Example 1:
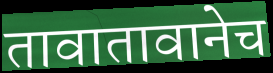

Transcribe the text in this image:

तावातावानेच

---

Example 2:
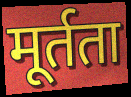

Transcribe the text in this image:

मूर्तता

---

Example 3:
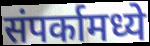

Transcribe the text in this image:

संपर्कामध्ये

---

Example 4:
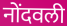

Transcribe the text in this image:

नोंदवली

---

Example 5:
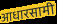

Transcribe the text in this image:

आधारसामी